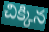
చిక్కిన